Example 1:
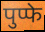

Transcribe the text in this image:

पुप्फे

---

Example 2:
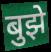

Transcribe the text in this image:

बुझे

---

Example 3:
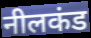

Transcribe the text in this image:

नीलकंड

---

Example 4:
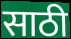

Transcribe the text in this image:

साठी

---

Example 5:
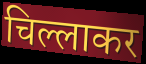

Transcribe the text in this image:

चिल्‍लाकर